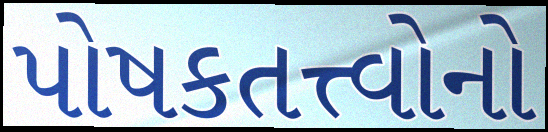
પોષકતત્ત્વોનો